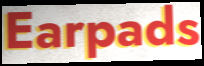
Earpads